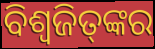
ବିଶ୍ଵଜିତ୍‌ଙ୍କର